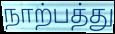
நாற்பத்து